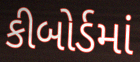
કીબોર્ડમાં